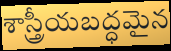
శాస్త్రీయబద్ధమైన